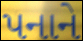
પનાને